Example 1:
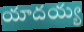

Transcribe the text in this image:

యాదయ్య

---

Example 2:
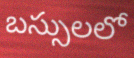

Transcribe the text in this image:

బస్సులలో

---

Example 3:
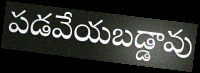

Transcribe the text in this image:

పడవేయబడ్డావు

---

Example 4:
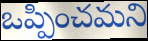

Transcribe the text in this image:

ఒప్పించమని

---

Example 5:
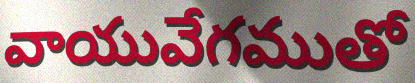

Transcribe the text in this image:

వాయువేగముతో